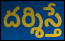
దర్శిస్తే